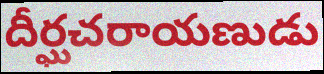
దీర్ఘచరాయణుడు